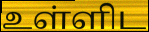
உள்ளிட